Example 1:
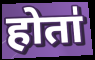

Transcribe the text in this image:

होता॑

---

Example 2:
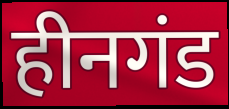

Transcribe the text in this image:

हीनगंड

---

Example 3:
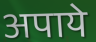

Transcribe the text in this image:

अपाये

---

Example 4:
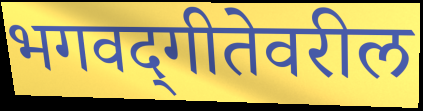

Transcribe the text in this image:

भगवद्‌गीतेवरील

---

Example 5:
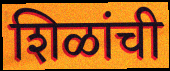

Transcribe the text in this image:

शिळांची